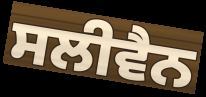
ਸਲੀਵੈਨ